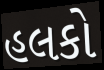
હલકો